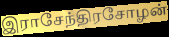
இராசேந்திரசோழன்